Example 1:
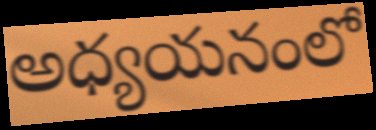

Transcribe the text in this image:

అధ్యయనంలో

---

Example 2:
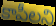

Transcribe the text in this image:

కాపీలని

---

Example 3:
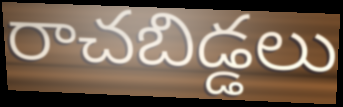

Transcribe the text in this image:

రాచబిడ్డలు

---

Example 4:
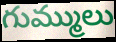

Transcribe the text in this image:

గుమ్ములు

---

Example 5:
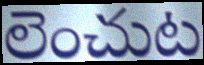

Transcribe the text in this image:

లెంచుట